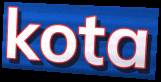
kota